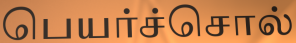
பெயர்ச்சொல்